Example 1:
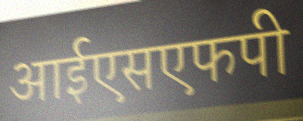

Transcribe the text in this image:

आईएसएफपी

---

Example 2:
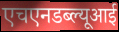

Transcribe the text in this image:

एचएनडब्ल्यूआई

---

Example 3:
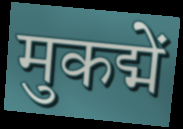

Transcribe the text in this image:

मुकद्में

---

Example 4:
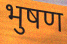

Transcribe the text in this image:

भुषण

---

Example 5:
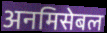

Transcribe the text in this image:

अनमिसेबल